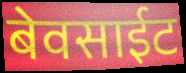
बेवसाईट